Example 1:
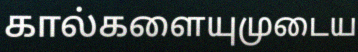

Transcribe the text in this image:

கால்களையுமுடைய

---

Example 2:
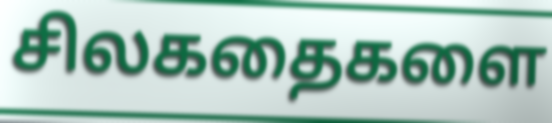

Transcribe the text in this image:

சிலகதைகளை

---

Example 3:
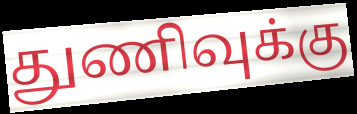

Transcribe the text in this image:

துணிவுக்கு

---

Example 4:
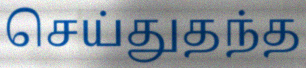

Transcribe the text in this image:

செய்துதந்த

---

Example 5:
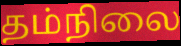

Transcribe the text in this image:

தம்நிலை